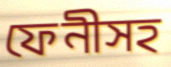
ফেনীসহ